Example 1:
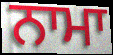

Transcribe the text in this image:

ਨਾਮਾ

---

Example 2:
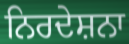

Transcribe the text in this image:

ਨਿਰਦੇਸ਼ਨਾ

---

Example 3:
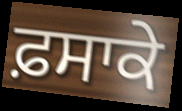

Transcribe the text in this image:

ਫ਼ਸਾਕੇ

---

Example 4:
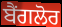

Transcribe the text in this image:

ਬੈਂਗਲੋਰ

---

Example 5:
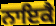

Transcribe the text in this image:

ਨਾਇਕੈ